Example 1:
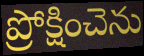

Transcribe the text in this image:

ప్రోక్షించెను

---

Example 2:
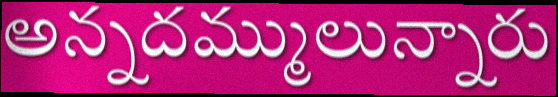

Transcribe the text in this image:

అన్నదమ్ములున్నారు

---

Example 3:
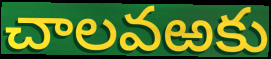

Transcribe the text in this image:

చాలవఱకు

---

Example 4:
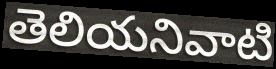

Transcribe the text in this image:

తెలియనివాటి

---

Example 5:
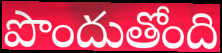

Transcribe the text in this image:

పొందుతోంది